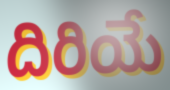
దిరియే